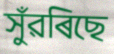
সুঁৱৰিছে